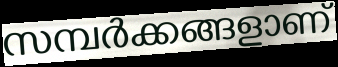
സമ്പർക്കങ്ങളാണ്